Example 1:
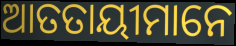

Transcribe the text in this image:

ଆତତାୟୀମାନେ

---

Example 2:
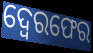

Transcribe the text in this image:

ଦ୍ବେରଫେର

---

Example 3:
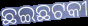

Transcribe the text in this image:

ଛଇଛଟକୀ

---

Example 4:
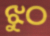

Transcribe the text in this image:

ଝୁଠ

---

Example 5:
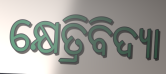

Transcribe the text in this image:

କ୍ଷେତ୍ରିବିଦ୍ୟା